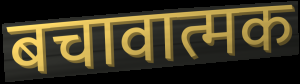
बचावात्मक